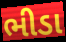
ભીડા